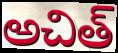
అచిత్